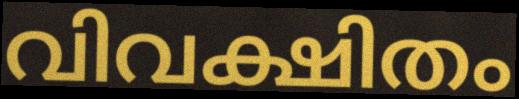
വിവക്ഷിതം